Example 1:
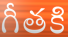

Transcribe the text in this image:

గీతకి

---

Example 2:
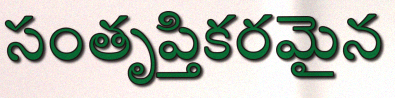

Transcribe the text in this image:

సంతృప్తికరమైన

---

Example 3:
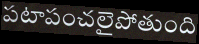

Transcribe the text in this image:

పటాపంచలైపోతుంది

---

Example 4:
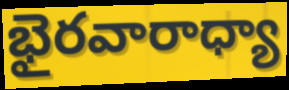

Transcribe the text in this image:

భైరవారాధ్యా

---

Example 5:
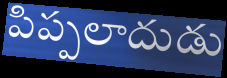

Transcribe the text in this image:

పిప్పలాదుడు